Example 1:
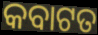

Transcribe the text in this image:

କବାଟତ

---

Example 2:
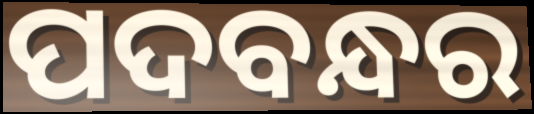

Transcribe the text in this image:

ପଦବନ୍ଧର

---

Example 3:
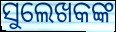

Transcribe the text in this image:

ସୁଲେଖକଙ୍କ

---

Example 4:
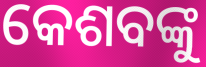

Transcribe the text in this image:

କେଶବଙ୍କୁ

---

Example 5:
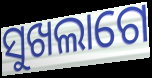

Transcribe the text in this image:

ସୁଖଲାଗେ